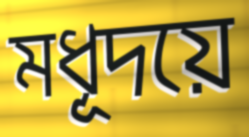
মধূদয়ে